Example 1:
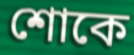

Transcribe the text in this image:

শোকে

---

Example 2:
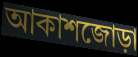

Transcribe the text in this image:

আকাশজোড়া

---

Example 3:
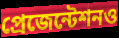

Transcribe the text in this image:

প্রেজেন্টেশনও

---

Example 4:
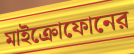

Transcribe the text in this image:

মাইক্রোফোনের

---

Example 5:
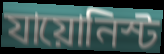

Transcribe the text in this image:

যায়োনিস্ট